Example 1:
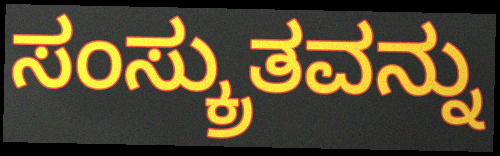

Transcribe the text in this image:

ಸಂಸ್ಕ್ರುತವನ್ನು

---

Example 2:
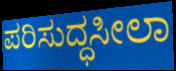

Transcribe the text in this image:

ಪರಿಸುದ್ಧಸೀಲಾ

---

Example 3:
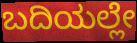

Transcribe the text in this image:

ಬದಿಯಲ್ಲೇ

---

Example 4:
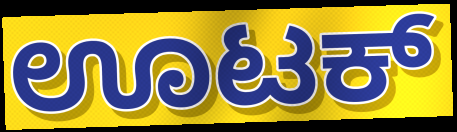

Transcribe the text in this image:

ಊಟಕ್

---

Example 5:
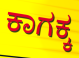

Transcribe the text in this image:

ಕಾಗಕ್ಕ